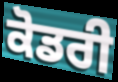
ਕੋਡਰੀ